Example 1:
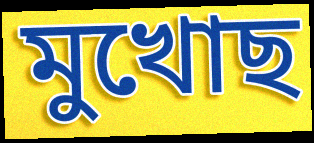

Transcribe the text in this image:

মুখোছ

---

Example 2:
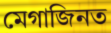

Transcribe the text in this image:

মেগাজিনত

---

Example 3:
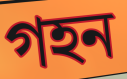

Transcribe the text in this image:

গহন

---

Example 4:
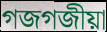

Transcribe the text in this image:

গজগজীয়া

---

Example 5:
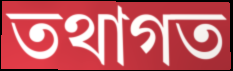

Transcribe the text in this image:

তথাগত